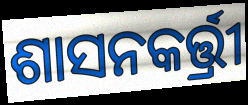
ଶାସନକର୍ତ୍ତ୍ରୀ